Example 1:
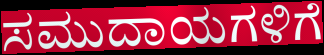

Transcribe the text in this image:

ಸಮುದಾಯಗಳಿಗೆ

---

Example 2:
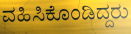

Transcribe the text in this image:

ವಹಿಸಿಕೊಂಡಿದ್ದರು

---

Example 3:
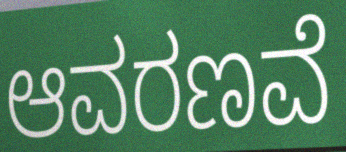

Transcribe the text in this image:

ಆವರಣವೆ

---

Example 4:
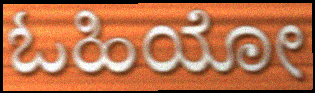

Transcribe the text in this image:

ಓಹಿಯೋ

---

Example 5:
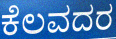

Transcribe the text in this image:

ಕೆಲವದರ